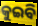
କୁଇବି